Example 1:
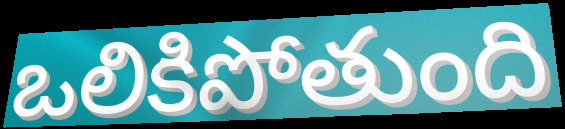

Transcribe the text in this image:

ఒలికిపోతుంది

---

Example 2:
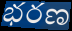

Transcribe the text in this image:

భరణ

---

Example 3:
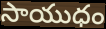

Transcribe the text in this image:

సాయుధం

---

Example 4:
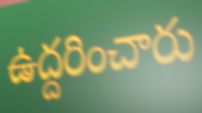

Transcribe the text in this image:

ఉద్దరించారు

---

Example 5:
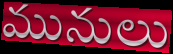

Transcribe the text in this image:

మునులు